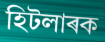
হিটলাৰক